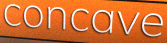
concave